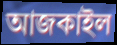
আজকাইল